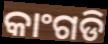
କାଂଗଡି